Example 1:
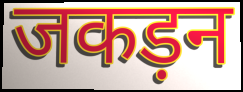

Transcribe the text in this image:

जकड़न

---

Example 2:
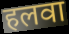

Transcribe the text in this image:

हलवा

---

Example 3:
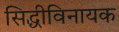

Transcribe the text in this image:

सिद्धीविनायक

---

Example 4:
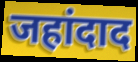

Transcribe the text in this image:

जहांदाद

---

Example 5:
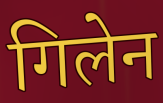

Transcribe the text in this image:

गिलेन